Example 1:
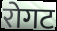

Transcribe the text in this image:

रोगट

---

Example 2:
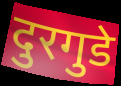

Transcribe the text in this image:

दुरगुडे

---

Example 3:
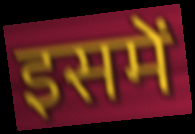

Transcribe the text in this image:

इसमें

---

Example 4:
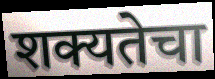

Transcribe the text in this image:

शक्‍यतेचा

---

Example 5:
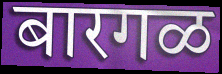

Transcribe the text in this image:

बारगळ